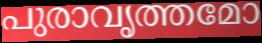
പുരാവൃത്തമോ